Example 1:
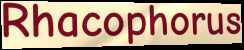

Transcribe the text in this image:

Rhacophorus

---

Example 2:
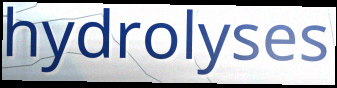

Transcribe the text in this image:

hydrolyses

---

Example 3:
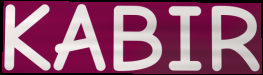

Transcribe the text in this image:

KABIR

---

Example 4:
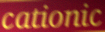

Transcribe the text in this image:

cationic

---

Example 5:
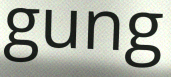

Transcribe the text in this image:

gung